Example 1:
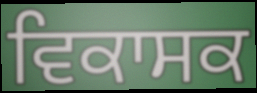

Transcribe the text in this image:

ਵਿਕਾਸਕ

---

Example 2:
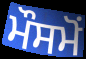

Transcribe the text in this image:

ਮੌਸਮੋਂ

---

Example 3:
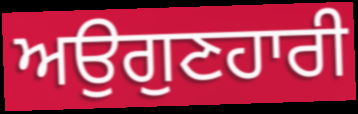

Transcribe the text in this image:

ਅਉਗੁਣਹਾਰੀ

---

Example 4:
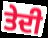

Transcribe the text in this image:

ਤੇਦੀ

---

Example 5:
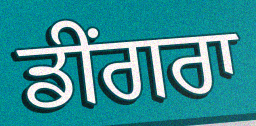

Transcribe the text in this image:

ਡੀਂਗਰਾ